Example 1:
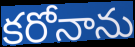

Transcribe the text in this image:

కరోనాను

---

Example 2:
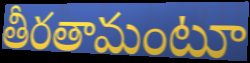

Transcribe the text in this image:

తీరతామంటూ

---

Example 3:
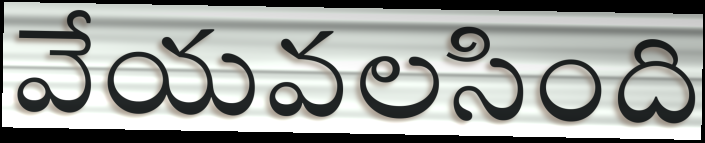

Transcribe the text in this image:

వేయవలసింది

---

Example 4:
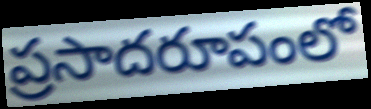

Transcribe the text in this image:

ప్రసాదరూపంలో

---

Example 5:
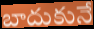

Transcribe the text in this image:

బాదుకునే